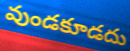
వుండకూడదు